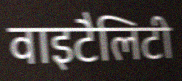
वाइटैलिटी